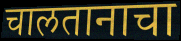
चालतानाचा